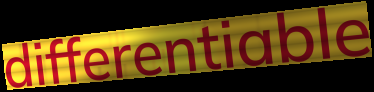
differentiable